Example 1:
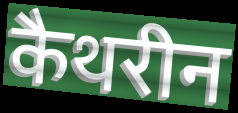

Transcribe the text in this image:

कैथरीन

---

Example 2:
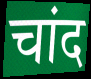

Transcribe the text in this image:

चांद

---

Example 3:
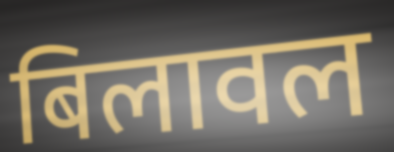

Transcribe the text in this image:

बिलावल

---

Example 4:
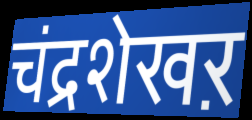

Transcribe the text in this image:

चंद्रशेखऱ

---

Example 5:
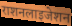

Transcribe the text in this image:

राशनलाइजेशन